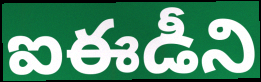
ఐఈడీని